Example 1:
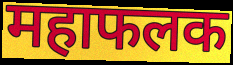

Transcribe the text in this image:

महाफलक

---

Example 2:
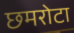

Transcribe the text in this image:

छमरोटा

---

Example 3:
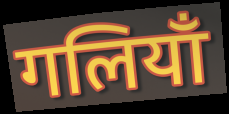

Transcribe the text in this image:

गलियाँ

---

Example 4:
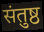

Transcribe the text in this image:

संतुष्ठ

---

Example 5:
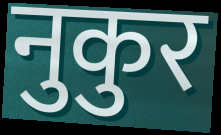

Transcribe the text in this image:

नुकुर